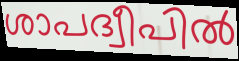
ശാപദ്വീപിൽ